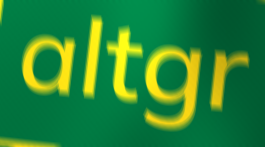
altgr